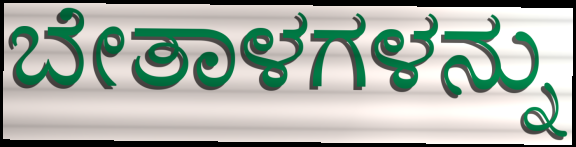
ಬೇತಾಳಗಳನ್ನು